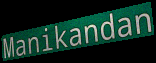
Manikandan